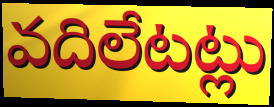
వదిలేటట్లు